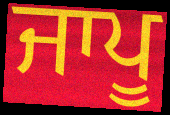
ਜਾਪੂ